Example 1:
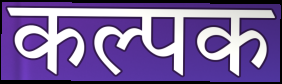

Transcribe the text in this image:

कल्पक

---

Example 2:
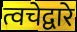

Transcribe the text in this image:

त्वचेद्वारे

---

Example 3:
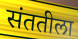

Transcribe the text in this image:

संततीला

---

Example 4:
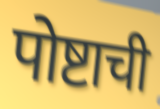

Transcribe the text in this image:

पोष्टाची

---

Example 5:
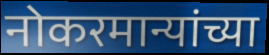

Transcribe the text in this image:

नोकरमान्यांच्या